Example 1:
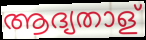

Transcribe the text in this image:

ആദ്യതാള്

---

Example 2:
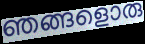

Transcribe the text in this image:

ഞങ്ങളൊരു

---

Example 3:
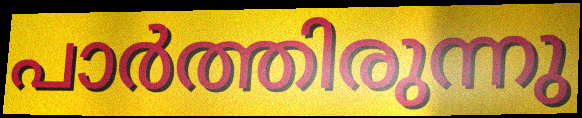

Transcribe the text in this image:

പാർത്തിരുന്നു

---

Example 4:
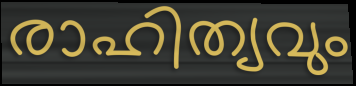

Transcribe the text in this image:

രാഹിത്യവും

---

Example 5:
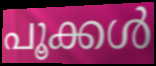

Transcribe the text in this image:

പൂക്കൾ